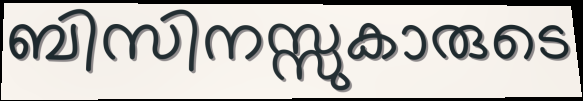
ബിസിനസ്സുകാരുടെ